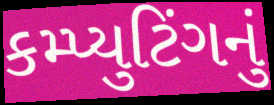
કમ્પ્યુટિંગનું